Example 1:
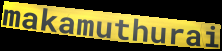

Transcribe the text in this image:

makamuthurai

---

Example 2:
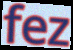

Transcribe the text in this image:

fez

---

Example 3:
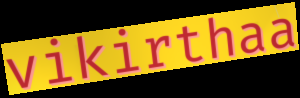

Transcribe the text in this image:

vikirthaa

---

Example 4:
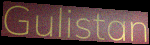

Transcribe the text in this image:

Gulistan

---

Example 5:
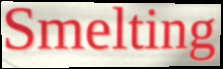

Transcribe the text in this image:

Smelting